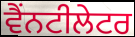
ਵੈਂਨਟੀਲੇਟਰ